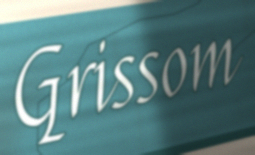
Grissom